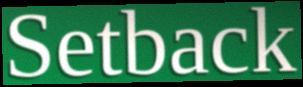
Setback